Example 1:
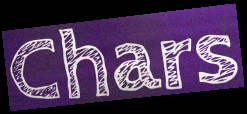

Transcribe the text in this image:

Chars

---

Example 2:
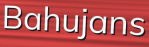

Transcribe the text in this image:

Bahujans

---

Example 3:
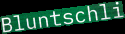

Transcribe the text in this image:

Bluntschli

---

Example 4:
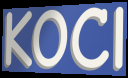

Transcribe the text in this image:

KOCl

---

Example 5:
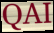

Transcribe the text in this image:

QAI